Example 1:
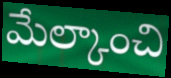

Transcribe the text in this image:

మేల్కాంచి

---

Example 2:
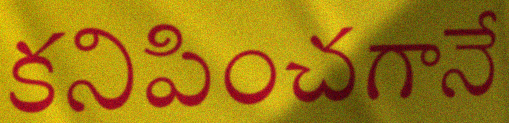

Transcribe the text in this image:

కనిపించగానే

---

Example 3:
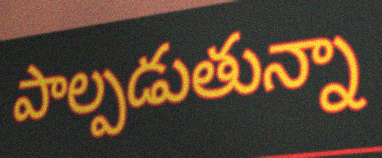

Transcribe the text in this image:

పాల్పడుతున్నా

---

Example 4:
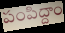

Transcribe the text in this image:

పంపిద్దాం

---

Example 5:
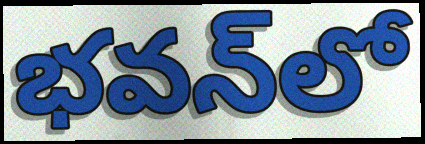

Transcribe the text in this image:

భవన్‌లో